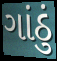
ગાંઠું